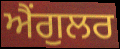
ਐਂਗੁਲਰ